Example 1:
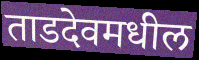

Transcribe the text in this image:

ताडदेवमधील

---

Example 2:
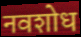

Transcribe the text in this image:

नवशोध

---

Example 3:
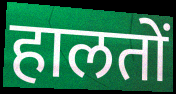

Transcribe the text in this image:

हालतों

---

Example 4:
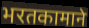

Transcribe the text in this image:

भरतकामाने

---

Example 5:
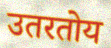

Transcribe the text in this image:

उतरतोय